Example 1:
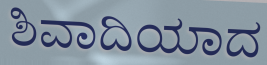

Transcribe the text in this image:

ಶಿವಾದಿಯಾದ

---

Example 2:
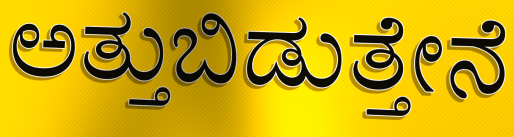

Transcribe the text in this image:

ಅತ್ತುಬಿಡುತ್ತೇನೆ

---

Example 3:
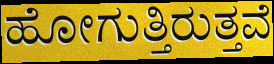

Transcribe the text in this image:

ಹೋಗುತ್ತಿರುತ್ತವೆ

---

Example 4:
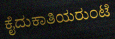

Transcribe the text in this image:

ಕೈದುಕಾತಿಯರುಂಟೆ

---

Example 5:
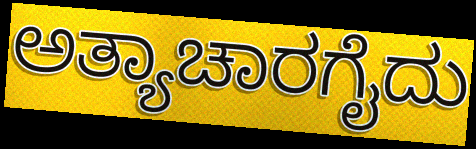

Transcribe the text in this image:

ಅತ್ಯಾಚಾರಗೈದು